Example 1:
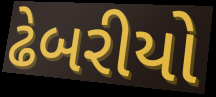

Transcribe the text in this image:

ઢેબરીયો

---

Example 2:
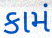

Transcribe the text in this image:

કામં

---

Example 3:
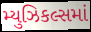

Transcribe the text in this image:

મ્યુઝિકલ્સમાં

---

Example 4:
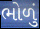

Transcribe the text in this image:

ભોળું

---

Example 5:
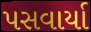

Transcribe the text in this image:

પસવાર્યા